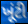
ખૂંટી